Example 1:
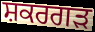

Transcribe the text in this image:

ਸ਼ਕਰਗੜ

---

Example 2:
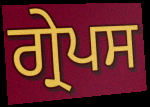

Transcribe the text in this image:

ਗ੍ਰੇਪਸ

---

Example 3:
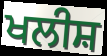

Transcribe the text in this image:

ਖਲੀਸ਼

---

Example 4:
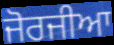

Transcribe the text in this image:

ਜੋਰਜੀਆ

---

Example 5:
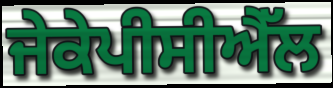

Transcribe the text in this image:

ਜੇਕੇਪੀਸੀਐੱਲ